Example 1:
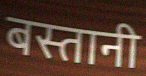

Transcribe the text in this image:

बस्तानी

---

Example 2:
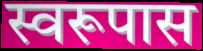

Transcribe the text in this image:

स्वरूपास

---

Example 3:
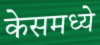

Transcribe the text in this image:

केसमध्ये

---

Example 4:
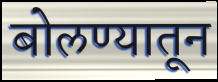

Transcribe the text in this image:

बोलण्यातून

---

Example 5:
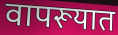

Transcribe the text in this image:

वापरूयात